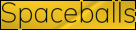
Spaceballs